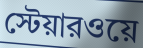
স্টেয়ারওয়ে